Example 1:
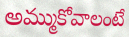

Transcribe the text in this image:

అమ్ముకోవాలంటే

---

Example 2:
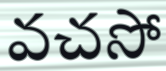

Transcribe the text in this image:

వచసో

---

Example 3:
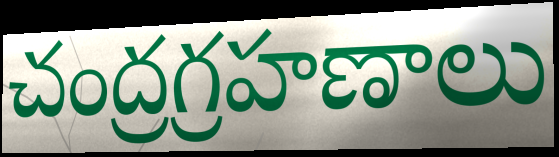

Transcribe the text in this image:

చంద్రగ్రహణాలు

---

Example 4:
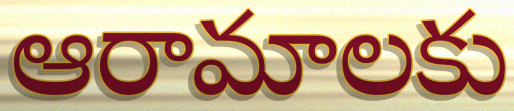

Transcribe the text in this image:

ఆరామాలకు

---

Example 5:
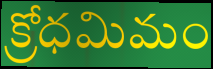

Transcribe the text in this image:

క్రోధమిమం